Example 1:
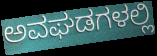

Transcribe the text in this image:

ಅವಘಡಗಳಲ್ಲಿ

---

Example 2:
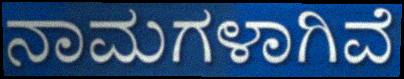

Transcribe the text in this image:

ನಾಮಗಳಾಗಿವೆ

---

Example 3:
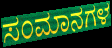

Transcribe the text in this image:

ಸಂಮಾನಗಳ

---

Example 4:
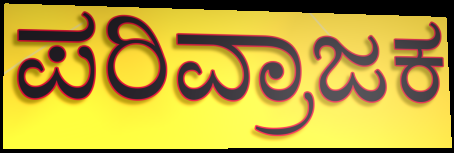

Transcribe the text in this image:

ಪರಿವ್ರಾಜಕ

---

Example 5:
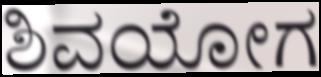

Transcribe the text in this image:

ಶಿವಯೋಗ